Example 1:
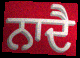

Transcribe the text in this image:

ਨਾਦੈ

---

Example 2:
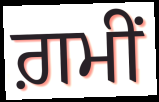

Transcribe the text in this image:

ਗ਼ਮੀਂ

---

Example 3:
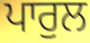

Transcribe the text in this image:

ਪਾਰੁਲ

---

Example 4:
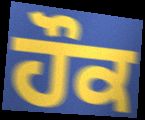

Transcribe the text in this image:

ਹੌਕ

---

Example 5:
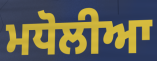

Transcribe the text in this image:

ਮਧੋਲੀਆ